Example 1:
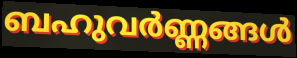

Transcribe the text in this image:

ബഹുവർണ്ണങ്ങൾ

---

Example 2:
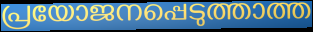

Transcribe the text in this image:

പ്രയോജനപ്പെടുത്താത്ത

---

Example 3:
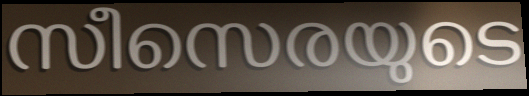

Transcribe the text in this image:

സീസെരയുടെ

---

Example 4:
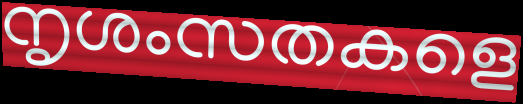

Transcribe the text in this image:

നൃശംസതകളെ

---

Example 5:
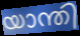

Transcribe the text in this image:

യാന്തി